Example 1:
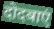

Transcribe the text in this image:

दोदबाएं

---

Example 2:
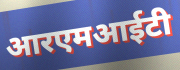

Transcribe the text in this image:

आरएमआईटी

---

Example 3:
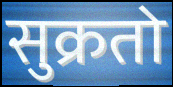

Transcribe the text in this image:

सुक्रतो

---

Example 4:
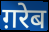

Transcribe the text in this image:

ग़रेब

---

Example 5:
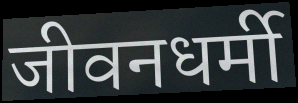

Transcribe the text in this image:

जीवनधर्मी